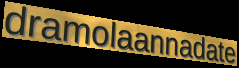
dramolaannadate